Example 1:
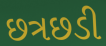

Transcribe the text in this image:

છત્રછડી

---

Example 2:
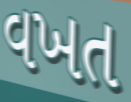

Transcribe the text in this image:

વખત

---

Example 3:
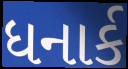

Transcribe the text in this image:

ધનાર્ક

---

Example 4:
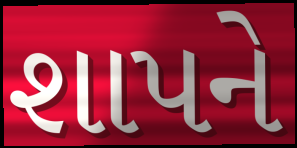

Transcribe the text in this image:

શાપને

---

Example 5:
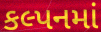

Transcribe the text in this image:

કલ્પનમાં